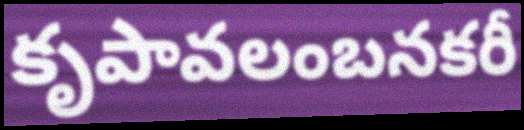
కృపావలంబనకరీ